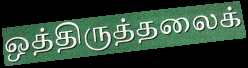
ஒத்திருத்தலைக்